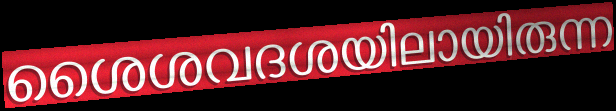
ശൈശവദശയിലായിരുന്ന